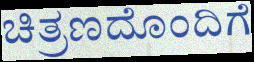
ಚಿತ್ರಣದೊಂದಿಗೆ